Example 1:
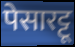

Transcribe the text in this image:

पेसारट्टू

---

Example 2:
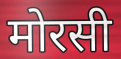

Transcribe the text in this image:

मोरसी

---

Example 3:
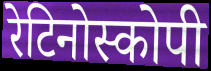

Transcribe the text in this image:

रेटिनोस्कोपी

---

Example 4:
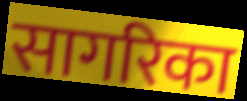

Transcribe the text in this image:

सागरिका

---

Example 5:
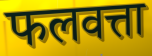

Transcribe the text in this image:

फलवत्ता